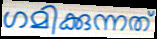
ഗമിക്കുന്നത്